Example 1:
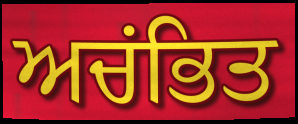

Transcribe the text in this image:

ਅਚਂਭਿਤ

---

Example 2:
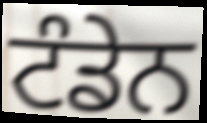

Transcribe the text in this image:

ਟੰਡੇਨ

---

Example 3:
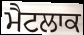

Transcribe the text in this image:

ਮੈਟਲਾਕ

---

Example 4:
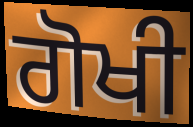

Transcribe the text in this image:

ਗੋਖੀ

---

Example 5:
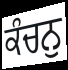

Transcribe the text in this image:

ਕੰਚਨੁ